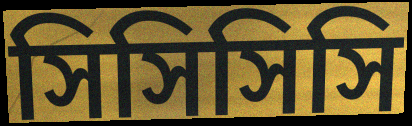
সিসিসিসি